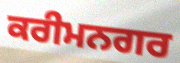
ਕਰੀਮਨਗਰ